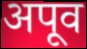
अपूव